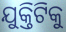
ଯୁକ୍ତିଟିକୁ